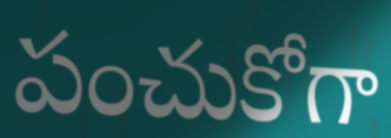
పంచుకోగా